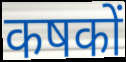
कषकों